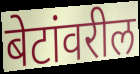
बेटांवरील